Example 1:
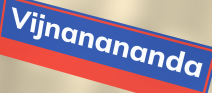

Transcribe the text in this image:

Vijnanananda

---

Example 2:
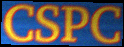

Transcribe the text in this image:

CSPC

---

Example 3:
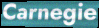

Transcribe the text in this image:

Carnegie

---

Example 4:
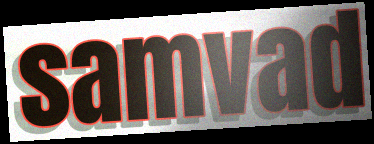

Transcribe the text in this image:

samvad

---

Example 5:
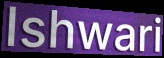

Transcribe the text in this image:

Ishwari